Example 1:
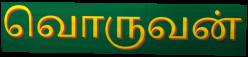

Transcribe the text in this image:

வொருவன்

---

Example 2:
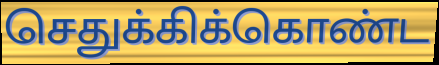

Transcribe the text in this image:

செதுக்கிக்கொண்ட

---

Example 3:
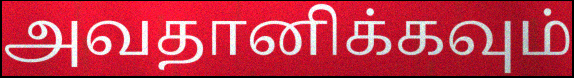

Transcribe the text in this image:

அவதானிக்கவும்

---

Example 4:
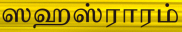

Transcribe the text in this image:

ஸஹஸ்ராரம்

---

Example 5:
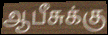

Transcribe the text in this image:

ஆபீசுக்கு